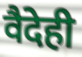
वैदेही